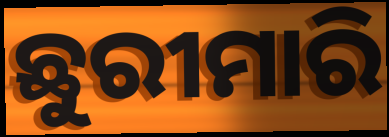
ଛୁରୀମାରି